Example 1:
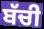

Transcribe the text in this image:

ਬੱਚੀ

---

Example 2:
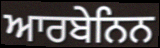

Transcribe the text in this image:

ਆਰਬੇਨਿਨ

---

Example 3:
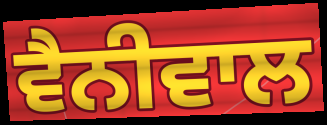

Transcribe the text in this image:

ਵੈਨੀਵਾਲ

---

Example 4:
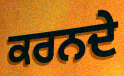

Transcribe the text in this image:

ਕਰਨਦੇ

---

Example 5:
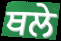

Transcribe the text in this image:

ਥਲੇ